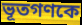
ভূতগণকে